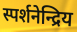
स्पर्शनेन्द्रिय